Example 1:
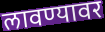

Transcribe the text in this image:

लावण्यावर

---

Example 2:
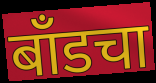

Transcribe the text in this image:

बाँडचा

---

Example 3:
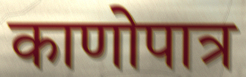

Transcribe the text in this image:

काणोपात्र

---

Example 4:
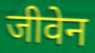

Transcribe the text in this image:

जीवेन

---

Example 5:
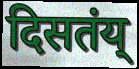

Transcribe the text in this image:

दिसतंय्